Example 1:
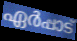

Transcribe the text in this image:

ഏർപ്പാട്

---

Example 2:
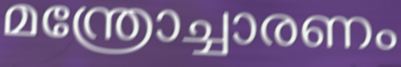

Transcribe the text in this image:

മന്ത്രോച്ചാരണം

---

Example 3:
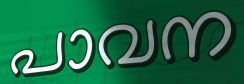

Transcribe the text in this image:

പാവന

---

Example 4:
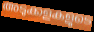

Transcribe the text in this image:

അടുക്കളകളുടെ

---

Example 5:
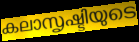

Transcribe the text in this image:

കലാസൃഷ്ടിയുടെ